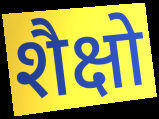
शैक्षो